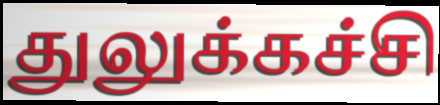
துலுக்கச்சி